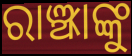
ରାଞ୍ଝାଙ୍କୁ